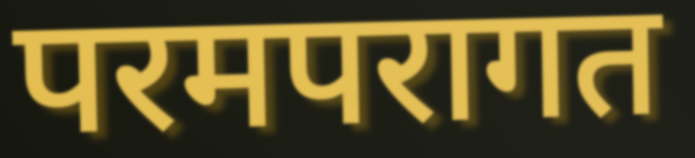
परमपरागत